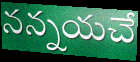
నన్నయచే